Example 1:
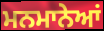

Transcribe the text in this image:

ਮਨਮਾਨੇਆਂ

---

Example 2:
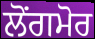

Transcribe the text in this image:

ਲੋਂਗਮੋਰ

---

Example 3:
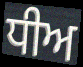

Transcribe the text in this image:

ਧੀਅ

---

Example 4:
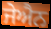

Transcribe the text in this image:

ਜੇਐਨ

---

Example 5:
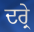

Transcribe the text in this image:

ਦਰ੍ਰੇ